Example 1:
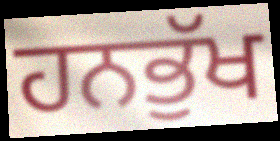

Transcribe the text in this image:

ਹਨਭੁੱਖ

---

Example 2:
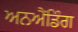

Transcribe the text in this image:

ਅਨਐਂਡਿੰਗ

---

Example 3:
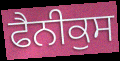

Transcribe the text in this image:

ਫੈਨੀਕੁਸ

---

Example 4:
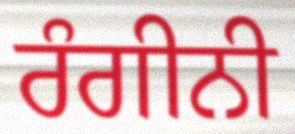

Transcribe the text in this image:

ਰੰਗੀਨੀ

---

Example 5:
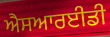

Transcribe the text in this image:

ਐਸਆਰਈਡੀ